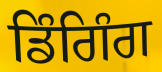
ਡਿੰਗਿੰਗ